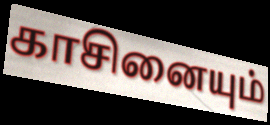
காசினையும்